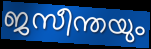
ജസീന്തയും